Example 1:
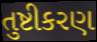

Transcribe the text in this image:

તુષ્ટીકરણ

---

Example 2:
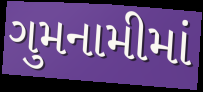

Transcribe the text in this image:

ગુમનામીમાં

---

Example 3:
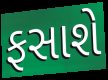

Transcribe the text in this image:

ફસાશે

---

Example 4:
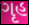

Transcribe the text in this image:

ગૃહ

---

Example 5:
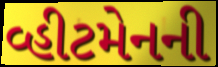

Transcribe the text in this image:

વ્હીટમેનની